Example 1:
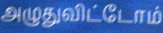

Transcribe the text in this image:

அழுதுவிட்டோம்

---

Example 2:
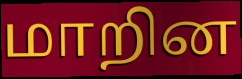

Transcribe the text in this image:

மாறின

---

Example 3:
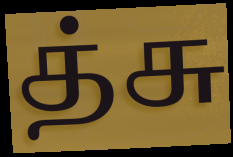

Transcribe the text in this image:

த்சு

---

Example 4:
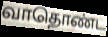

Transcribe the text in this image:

வாதொண்ட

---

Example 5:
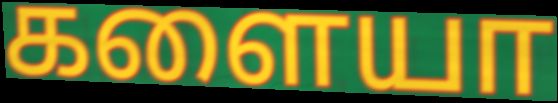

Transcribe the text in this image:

களையா